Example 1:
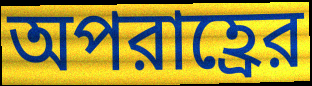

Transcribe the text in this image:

অপরাহ্রের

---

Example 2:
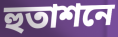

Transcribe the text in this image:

হুতাশনে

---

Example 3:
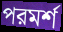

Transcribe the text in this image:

পরমর্শ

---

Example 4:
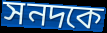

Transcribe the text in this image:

সনদকে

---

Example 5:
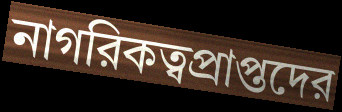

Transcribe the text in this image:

নাগরিকত্বপ্রাপ্তদের